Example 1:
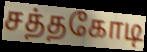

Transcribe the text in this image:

சத்தகோடி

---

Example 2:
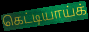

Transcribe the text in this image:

கெட்டியாய்க்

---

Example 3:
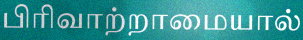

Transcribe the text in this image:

பிரிவாற்றாமையால்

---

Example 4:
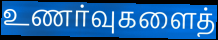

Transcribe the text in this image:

உணர்வுகளைத்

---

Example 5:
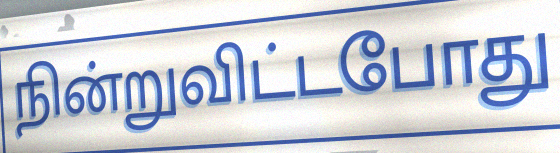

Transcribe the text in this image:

நின்றுவிட்டபோது